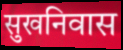
सुखनिवास